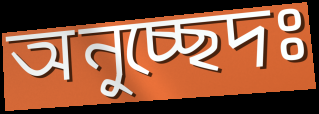
অনুচ্ছেদঃ